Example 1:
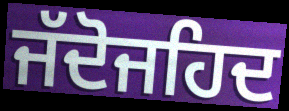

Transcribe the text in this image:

ਜੱਦੋਜਹਿਦ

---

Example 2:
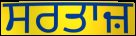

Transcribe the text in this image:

ਸਰਤਾਜ਼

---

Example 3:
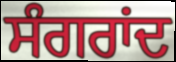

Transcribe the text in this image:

ਸੰਗਰਾਂਦ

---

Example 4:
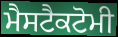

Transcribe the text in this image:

ਮੈਸਟੈਕਟੋਮੀ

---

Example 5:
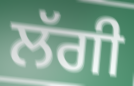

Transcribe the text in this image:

ਲੱਗੀ